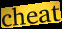
cheat